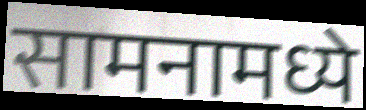
सामनामध्ये